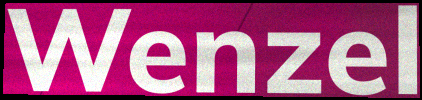
Wenzel